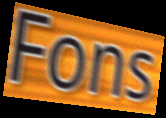
Fons